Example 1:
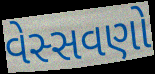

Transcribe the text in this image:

વેસ્સવણો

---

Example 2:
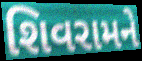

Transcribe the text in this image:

શિવરામને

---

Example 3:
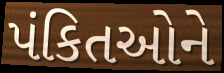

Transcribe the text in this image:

પંકિતઓને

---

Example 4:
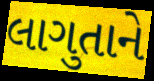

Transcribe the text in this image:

લાગુતાને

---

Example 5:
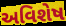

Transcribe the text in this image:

અવિશેષ